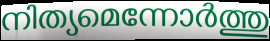
നിത്യമെന്നോർത്തു